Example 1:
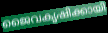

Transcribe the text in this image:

ജൈവകൃഷിക്കായി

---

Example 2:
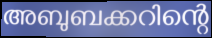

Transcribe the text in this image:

അബുബക്കറിന്റെ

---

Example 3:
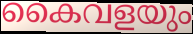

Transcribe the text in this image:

കൈവളയും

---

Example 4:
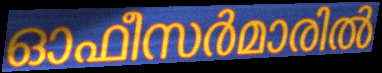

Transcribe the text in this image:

ഓഫീസർമാരിൽ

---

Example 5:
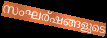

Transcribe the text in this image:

സംഘര്ഷങ്ങളുടെ